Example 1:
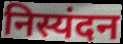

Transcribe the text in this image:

निस्यंदन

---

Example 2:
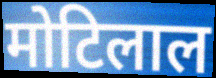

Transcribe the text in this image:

मोटिलाल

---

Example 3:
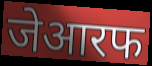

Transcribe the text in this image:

जेआरफ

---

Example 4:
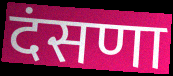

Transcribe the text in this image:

दंसणा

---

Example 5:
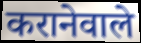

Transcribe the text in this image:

करानेवाले